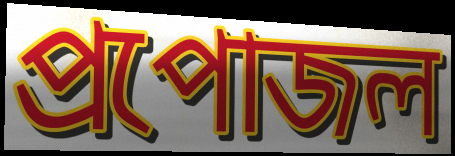
প্রপোজল